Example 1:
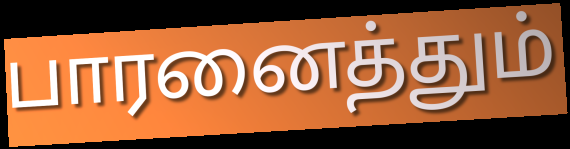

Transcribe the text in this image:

பாரனைத்தும்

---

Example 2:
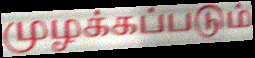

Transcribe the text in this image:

முழக்கப்படும்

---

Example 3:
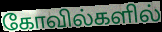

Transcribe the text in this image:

கோவில்களில்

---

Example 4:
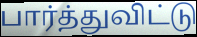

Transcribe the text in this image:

பார்த்துவிட்டு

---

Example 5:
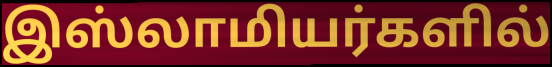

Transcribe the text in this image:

இஸ்லாமியர்களில்